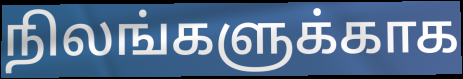
நிலங்களுக்காக